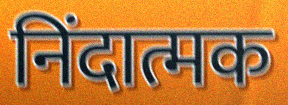
निंदात्मक